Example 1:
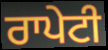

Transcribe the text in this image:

ਰਾਪੇਟੀ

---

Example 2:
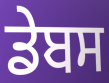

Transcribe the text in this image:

ਡੇਬਸ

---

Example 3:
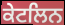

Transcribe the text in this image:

ਕੇਟਲਿਨ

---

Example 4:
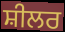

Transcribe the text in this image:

ਸ਼ੀਲਰ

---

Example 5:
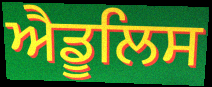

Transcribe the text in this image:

ਐਡੂਲਿਸ